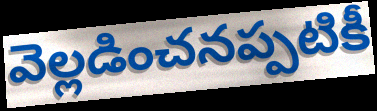
వెల్లడించనప్పటికీ